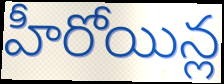
హీరోయిన్ల